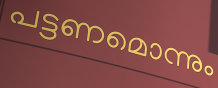
പട്ടണമൊന്നും